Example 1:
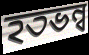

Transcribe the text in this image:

হতভন্ব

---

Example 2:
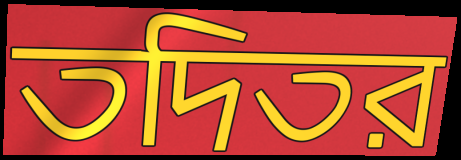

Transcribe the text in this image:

তদিতর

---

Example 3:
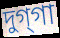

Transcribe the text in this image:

দুগ্‌গা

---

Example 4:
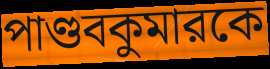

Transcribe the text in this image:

পাণ্ডবকুমারকে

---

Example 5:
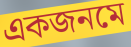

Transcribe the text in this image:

একজনমে